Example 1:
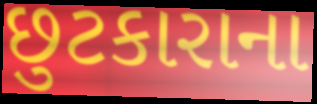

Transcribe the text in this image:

છુટકારાના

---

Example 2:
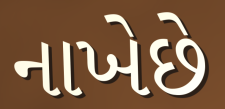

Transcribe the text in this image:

નાખેછે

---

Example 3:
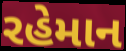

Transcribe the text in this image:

રહેમાન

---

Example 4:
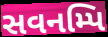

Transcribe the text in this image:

સવનમ્પિ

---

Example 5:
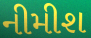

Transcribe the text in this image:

નીમીશ